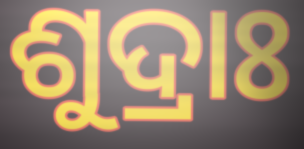
ଶୁଦ୍ରାଃ